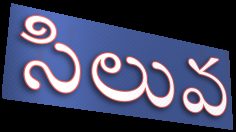
సిలువ